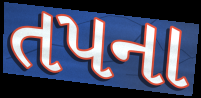
તપના